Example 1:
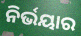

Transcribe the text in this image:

ନିର୍ଭୟାର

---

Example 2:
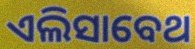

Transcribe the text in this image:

ଏଲିସାବେଥ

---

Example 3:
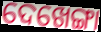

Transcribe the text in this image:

ଦେଖେଙ୍ଗା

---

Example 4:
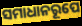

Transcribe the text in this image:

ସମାଧାନରୂପେ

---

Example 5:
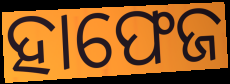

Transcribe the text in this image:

ହାଫେଜ